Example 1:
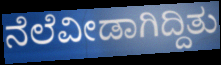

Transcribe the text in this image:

ನೆಲೆವೀಡಾಗಿದ್ದಿತು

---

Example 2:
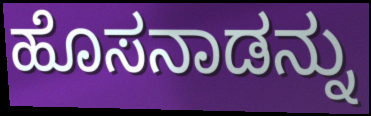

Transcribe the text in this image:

ಹೊಸನಾಡನ್ನು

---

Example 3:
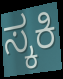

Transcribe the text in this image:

ಸ್ಕಕಿ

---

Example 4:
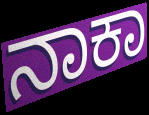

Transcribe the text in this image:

ನಾಕಾ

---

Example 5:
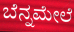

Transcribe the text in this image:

ಬೆನ್ನಮೇಲೆ